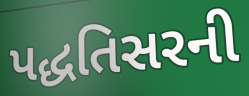
પદ્ધતિસરની